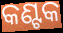
କଣ୍ଟକ